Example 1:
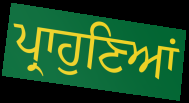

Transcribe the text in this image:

ਪ੍ਰਾਹੁਣਿਆਂ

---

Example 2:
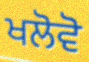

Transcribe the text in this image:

ਖਲੋਵੋ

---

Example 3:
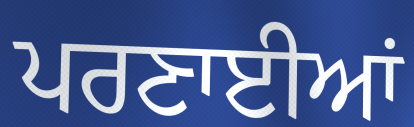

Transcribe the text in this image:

ਪਰਣਾਈਆਂ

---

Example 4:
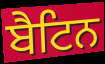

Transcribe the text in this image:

ਬੈਟਿਨ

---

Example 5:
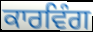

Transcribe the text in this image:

ਕਾਰਵਿੰਗ